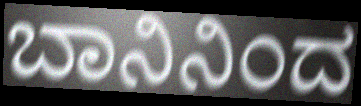
ಬಾನಿನಿಂದ